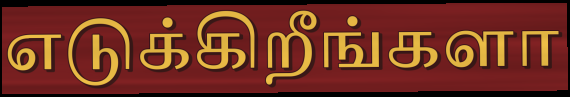
எடுக்கிறீங்களா